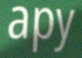
apy